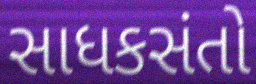
સાધકસંતો